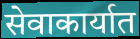
सेवाकार्यात